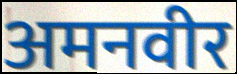
अमनवीर